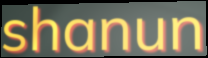
shanun